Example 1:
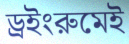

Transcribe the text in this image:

ড্রইংরুমেই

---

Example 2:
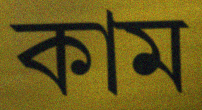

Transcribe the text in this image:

কাম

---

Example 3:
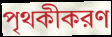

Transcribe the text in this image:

পৃথকীকরণ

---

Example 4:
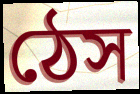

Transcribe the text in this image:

ঠেস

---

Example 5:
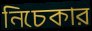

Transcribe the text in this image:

নিচেকার